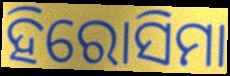
ହିରୋସିମା